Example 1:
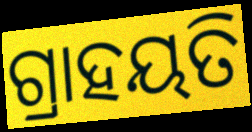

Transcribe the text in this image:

ଗ୍ରାହୟତି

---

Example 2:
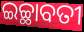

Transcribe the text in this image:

ଇଚ୍ଛାବତୀ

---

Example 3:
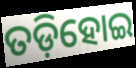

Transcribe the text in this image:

ତଡ଼ିହୋଇ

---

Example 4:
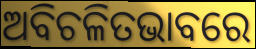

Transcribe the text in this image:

ଅବିଚଳିତଭାବରେ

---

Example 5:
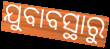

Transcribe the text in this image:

ଯୁବାବସ୍ଥାରୁ